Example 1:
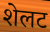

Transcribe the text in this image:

शेलट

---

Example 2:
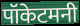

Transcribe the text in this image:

पॉकेटमनी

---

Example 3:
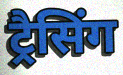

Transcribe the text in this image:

ट्रैसिंग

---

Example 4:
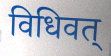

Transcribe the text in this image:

विधिवत्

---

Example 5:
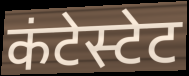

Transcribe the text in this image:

कंटेस्टेट